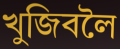
খুজিবলৈ